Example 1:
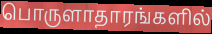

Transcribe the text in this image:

பொருளாதாரங்களில்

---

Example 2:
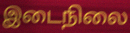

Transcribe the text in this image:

இடைநிலை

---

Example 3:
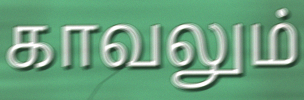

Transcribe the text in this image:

காவலும்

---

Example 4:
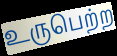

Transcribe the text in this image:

உருபெற்ற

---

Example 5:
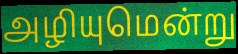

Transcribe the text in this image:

அழியுமென்று